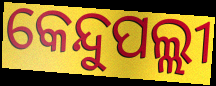
କେନ୍ଦୁପଲ୍ଲୀ